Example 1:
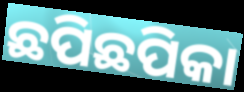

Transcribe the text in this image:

ଛପିଛପିକା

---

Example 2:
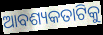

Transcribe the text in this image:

ଆବଶ୍ୟକତାଟିକୁ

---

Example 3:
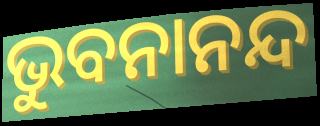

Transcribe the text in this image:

ଭୁବନାନନ୍ଦ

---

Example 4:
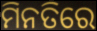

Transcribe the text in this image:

ମିନତିରେ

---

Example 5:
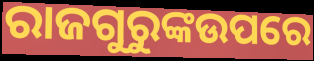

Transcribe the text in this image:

ରାଜଗୁରୁଙ୍କଉପରେ